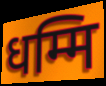
धम्मि